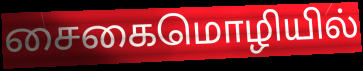
சைகைமொழியில்